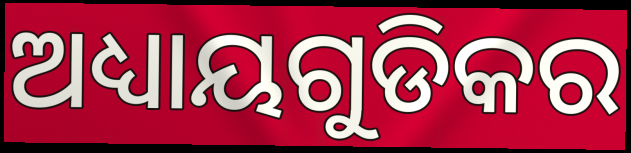
ଅଧ୍ୟାୟଗୁଡିକର